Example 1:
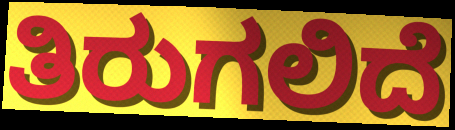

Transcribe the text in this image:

ತಿರುಗಲಿದೆ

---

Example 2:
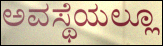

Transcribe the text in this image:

ಅವಸ್ಥೆಯಲ್ಲೂ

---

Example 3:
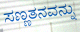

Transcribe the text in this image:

ಸಣ್ಣತನವನ್ನು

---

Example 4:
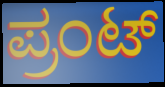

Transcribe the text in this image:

ಪ್ರಂಟ್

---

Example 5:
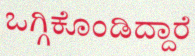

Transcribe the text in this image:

ಒಗ್ಗಿಕೊಂಡಿದ್ದಾರೆ